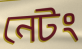
নেটং